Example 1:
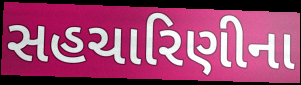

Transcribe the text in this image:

સહચારિણીના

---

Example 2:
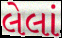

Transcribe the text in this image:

લેલાં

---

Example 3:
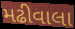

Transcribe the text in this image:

મઢીવાલા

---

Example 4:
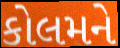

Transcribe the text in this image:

કોલમને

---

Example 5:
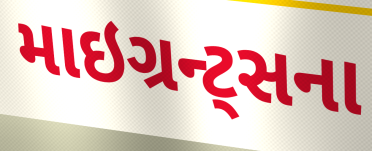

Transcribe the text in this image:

માઇગ્રન્ટ્સના